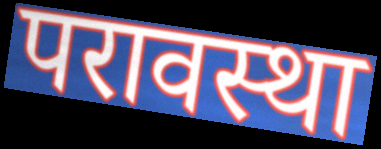
परावस्था